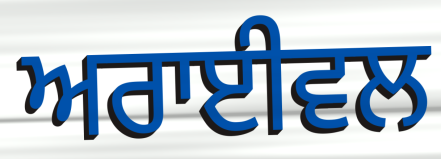
ਅਰਾਈਵਲ